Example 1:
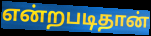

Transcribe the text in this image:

என்றபடிதான்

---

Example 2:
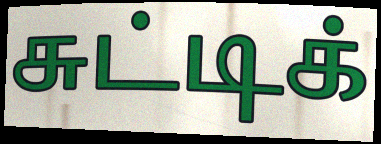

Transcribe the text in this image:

சுட்டிக்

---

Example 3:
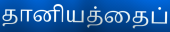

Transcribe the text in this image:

தானியத்தைப்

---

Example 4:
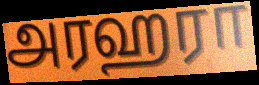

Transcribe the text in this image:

அரஹரா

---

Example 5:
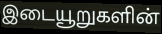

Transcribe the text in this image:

இடையூறுகளின்